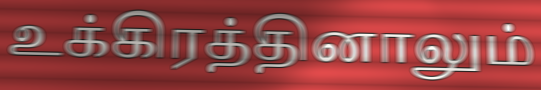
உக்கிரத்தினாலும்